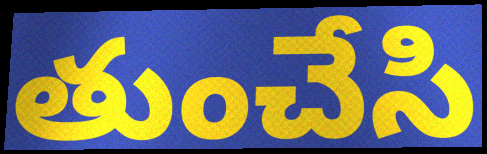
తుంచేసి